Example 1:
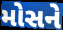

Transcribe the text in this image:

મોસને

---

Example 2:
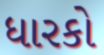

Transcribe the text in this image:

ધારકો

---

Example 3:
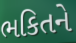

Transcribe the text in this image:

ભકિતને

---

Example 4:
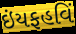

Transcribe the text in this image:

ઇંયફહવિં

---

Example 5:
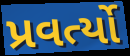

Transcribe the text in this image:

પ્રવર્ત્યો